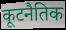
कूटनैतिक